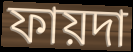
ফায়দা